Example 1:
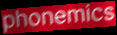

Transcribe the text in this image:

phonemics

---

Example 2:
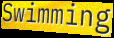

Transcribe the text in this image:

Swimming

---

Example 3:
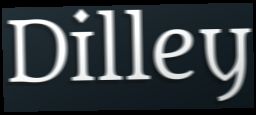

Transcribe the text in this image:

Dilley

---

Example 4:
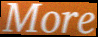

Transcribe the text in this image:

More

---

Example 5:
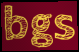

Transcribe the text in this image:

bgs